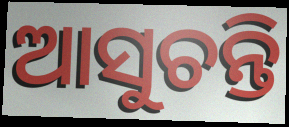
ଆସୁଚନ୍ତି